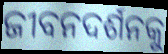
ଜୀବନଦର୍ଶନକୁ